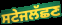
ਸਟੇਜਲੱਛਣ